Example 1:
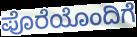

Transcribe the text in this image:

ಪೊರೆಯೊಂದಿಗೆ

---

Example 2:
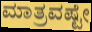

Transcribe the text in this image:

ಮಾತ್ರವಷ್ಟೇ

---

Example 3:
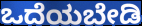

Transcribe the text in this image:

ಒದೆಯಬೇಡಿ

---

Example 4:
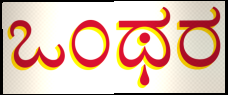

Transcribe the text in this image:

ಒಂಥರ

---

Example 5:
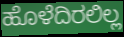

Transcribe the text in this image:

ಹೊಳೆದಿರಲಿಲ್ಲ